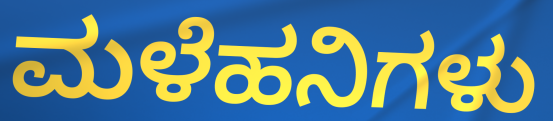
ಮಳೆಹನಿಗಳು